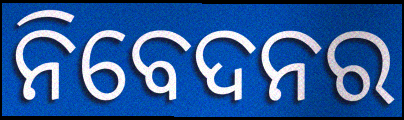
ନିବେଦନର